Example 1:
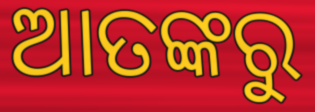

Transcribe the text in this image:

ଆତଙ୍କରୁ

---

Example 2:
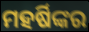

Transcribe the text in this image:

ମହର୍ଷିଙ୍କର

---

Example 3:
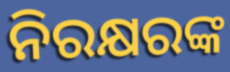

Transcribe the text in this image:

ନିରକ୍ଷରଙ୍କ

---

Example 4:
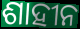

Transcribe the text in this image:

ଶାହୀନ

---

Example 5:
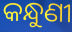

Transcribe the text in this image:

କନ୍ଧୁଣୀ